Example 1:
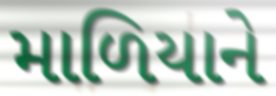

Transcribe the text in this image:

માળિયાને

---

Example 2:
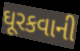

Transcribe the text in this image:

ઘૂરકવાની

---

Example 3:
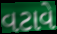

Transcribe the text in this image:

વટાવે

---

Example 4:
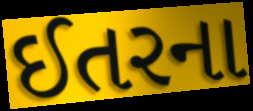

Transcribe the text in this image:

ઈતરના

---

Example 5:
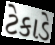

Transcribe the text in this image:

ટેકાડે